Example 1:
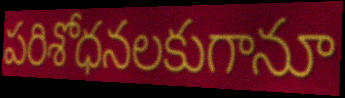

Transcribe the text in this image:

పరిశోధనలకుగానూ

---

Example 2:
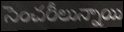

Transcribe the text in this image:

సెంచరీలున్నాయి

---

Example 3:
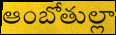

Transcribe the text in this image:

ఆంబోతుల్లా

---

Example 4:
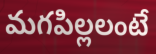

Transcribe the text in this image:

మగపిల్లలంటే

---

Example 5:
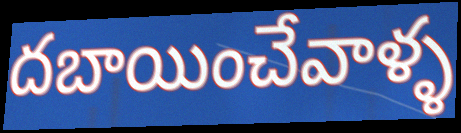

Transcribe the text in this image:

దబాయించేవాళ్ళ